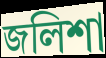
জলিশা